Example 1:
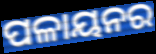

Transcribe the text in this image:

ପଳାୟନର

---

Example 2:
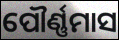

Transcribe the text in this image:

ପୌର୍ଣ୍ଣମାସ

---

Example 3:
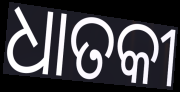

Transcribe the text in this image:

ଧାତକୀ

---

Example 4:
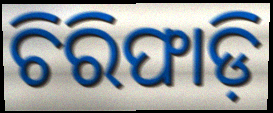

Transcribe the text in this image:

ଚିରିଫାଡ଼ି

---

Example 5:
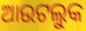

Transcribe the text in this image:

ଆଉଟଲୁକ